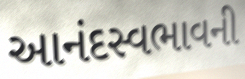
આનંદસ્વભાવની